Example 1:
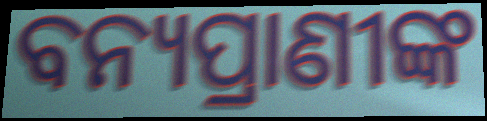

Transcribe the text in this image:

ବନ୍ୟପ୍ରାଣୀଙ୍କ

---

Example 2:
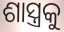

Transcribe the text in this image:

ଶାସ୍ତ୍ରକୁ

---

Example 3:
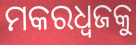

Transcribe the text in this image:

ମକରଧ୍ୱଜକୁ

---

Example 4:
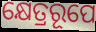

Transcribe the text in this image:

କ୍ଷେତ୍ରରୂପେ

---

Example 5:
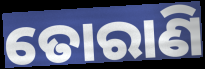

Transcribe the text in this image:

ତୋରାଣି